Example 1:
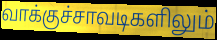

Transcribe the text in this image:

வாக்குச்சாவடிகளிலும்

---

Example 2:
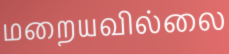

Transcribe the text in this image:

மறையவில்லை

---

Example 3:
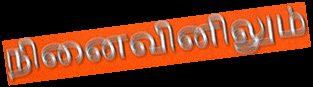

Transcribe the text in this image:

நினைவினிலும்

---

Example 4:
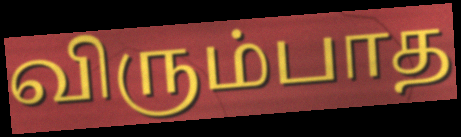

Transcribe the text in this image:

விரும்பாத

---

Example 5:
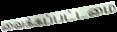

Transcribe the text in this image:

வைக்கப்பட்டமை